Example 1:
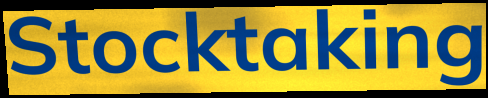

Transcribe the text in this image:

Stocktaking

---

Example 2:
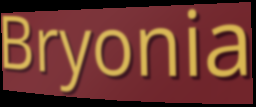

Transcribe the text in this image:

Bryonia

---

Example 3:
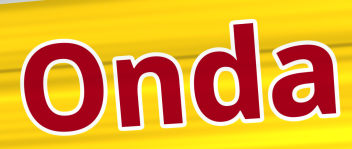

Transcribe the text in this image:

Onda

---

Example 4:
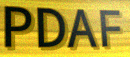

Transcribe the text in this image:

PDAF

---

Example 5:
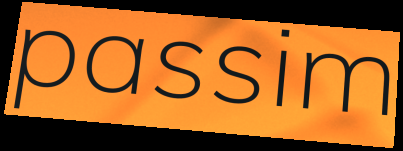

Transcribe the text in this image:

passim